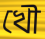
খৌ